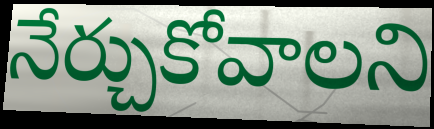
నేర్చుకోవాలని